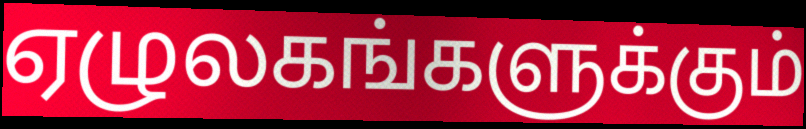
ஏழுலகங்களுக்கும்